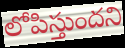
లోపిస్తుందని